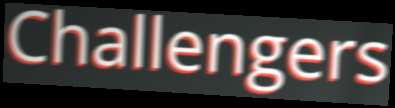
Challengers